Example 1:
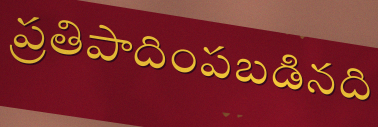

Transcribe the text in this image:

ప్రతిపాదింపబడినది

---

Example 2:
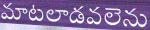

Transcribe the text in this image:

మాటలాడవలెను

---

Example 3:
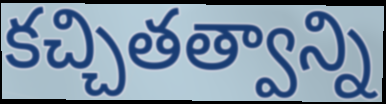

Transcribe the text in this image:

కచ్చితత్వాన్ని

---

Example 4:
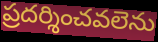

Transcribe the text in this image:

ప్రదర్శించవలెను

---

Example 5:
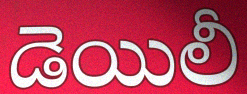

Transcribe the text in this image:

డెయిలీ